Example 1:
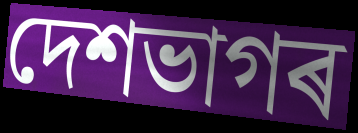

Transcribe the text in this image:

দেশভাগৰ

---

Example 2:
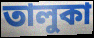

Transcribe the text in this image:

তালুকা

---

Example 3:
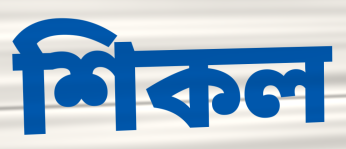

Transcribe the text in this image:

শিকল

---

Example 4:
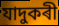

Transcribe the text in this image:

যাদুকৰী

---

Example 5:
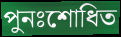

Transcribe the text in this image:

পুনঃশোধিত